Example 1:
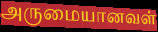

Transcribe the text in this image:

அருமையானவள்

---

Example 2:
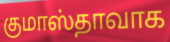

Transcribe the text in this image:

குமாஸ்தாவாக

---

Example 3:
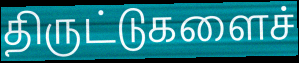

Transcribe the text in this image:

திருட்டுகளைச்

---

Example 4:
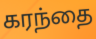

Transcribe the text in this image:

கரந்தை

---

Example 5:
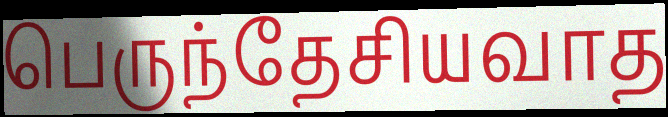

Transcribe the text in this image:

பெருந்தேசியவாத